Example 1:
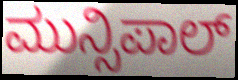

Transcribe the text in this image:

ಮುನ್ಸಿಪಾಲ್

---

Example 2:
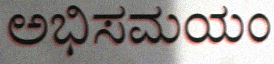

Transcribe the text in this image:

ಅಭಿಸಮಯಂ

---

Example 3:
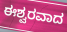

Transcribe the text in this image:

ಈಶ್ವರವಾದ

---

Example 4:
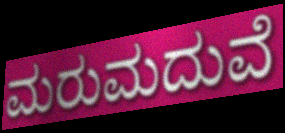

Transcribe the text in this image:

ಮರುಮದುವೆ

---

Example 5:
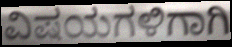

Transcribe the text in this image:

ವಿಷಯಗಳಿಗಾಗಿ